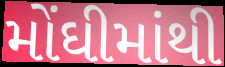
મોંઘીમાંથી